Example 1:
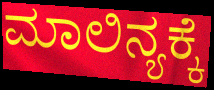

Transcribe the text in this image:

ಮಾಲಿನ್ಯಕ್ಕೆ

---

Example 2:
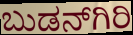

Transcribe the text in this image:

ಬುಡನ್‍ಗಿರಿ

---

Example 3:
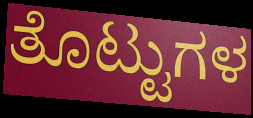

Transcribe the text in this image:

ತೊಟ್ಟುಗಳ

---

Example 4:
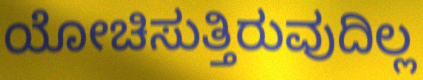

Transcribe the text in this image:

ಯೋಚಿಸುತ್ತಿರುವುದಿಲ್ಲ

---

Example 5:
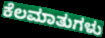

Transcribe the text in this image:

ಕೆಲಮಾತುಗಳು